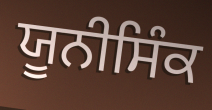
ਯੂਨੀਸਿੰਕ